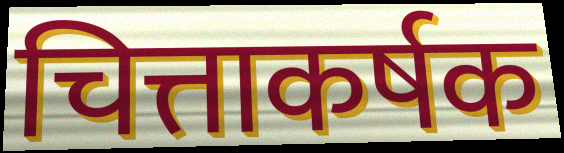
चित्ताकर्षक